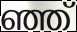
ഞ്ഞ്